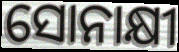
ସୋନାକ୍ଷୀ